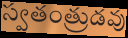
స్వతంత్రుడవు